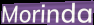
Morinda